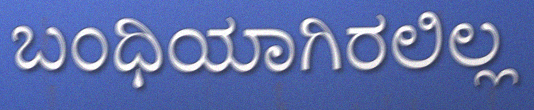
ಬಂಧಿಯಾಗಿರಲಿಲ್ಲ